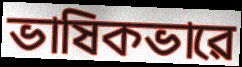
ভাষিকভাৱে